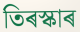
তিৰস্কাৰ